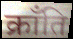
क्राँति